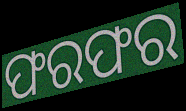
ଫରଫର